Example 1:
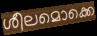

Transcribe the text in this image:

ശീലമൊക്കെ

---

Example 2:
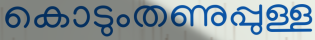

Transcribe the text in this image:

കൊടുംതണുപ്പുള്ള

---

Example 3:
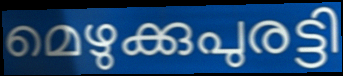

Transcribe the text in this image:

മെഴുക്കുപുരട്ടി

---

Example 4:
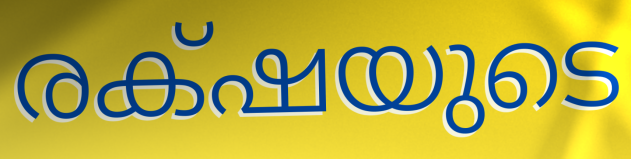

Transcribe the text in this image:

രക്‌ഷയുടെ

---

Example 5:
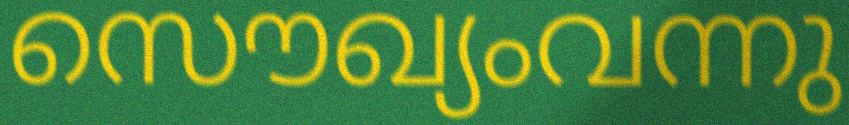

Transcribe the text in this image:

സൌഖ്യംവന്നു